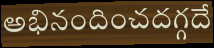
అభినందించదగ్గదే